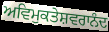
ਅਵਿਮੁਕਤੇਸ਼ਵਰਾਨੰਦ